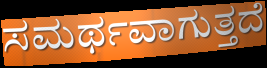
ಸಮರ್ಥವಾಗುತ್ತದೆ